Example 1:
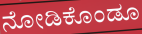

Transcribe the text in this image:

ನೋಡಿಕೊಂಡೂ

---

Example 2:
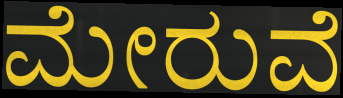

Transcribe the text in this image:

ಮೇರುವೆ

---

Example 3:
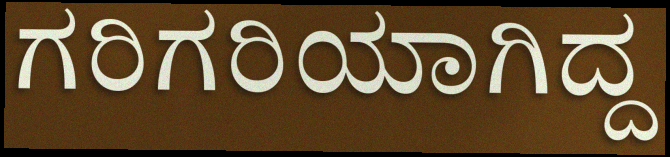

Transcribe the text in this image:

ಗರಿಗರಿಯಾಗಿದ್ದ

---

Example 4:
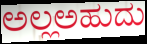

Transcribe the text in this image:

ಅಲ್ಲಅಹುದು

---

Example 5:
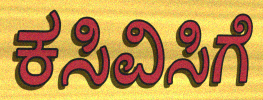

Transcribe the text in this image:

ಕಸಿವಿಸಿಗೆ